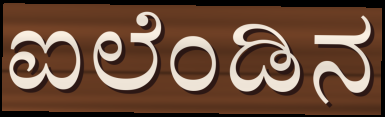
ಐಲೆಂಡಿನ